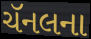
ચૅનલના